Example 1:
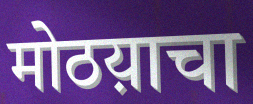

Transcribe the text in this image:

मोठय़ाचा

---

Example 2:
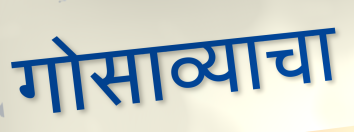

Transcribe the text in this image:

गोसाव्याचा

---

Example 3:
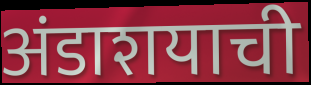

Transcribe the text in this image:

अंडाशयाची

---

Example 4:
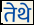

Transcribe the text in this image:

तेथे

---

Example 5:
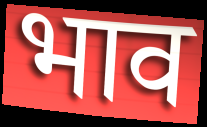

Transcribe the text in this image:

भाव